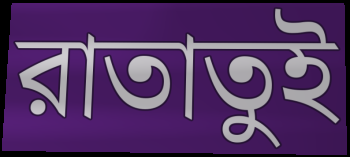
রাতাতুই